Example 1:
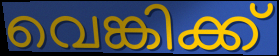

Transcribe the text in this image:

വെങ്കിക്ക്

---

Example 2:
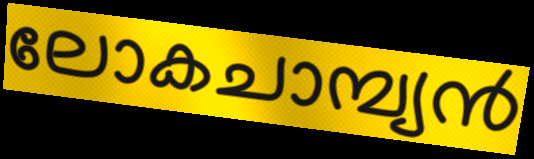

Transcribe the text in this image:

ലോകചാമ്പ്യൻ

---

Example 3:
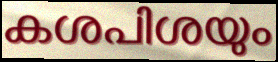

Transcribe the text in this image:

കശപിശയും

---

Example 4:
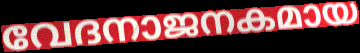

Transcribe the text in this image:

വേദനാജനകമായ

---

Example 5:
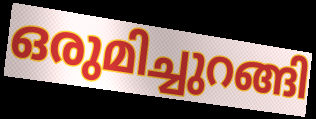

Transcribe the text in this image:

ഒരുമിച്ചുറങ്ങി